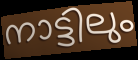
നാട്ടിലും